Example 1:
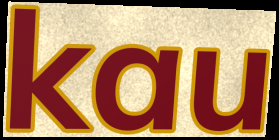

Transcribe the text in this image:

kau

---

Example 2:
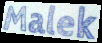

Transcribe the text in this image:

Malek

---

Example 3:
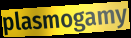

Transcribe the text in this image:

plasmogamy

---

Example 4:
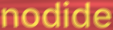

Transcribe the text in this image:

nodide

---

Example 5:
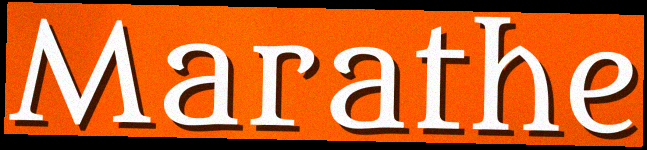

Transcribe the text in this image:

Marathe